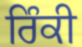
ਰਿੰਕੀ